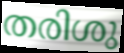
തരിശു